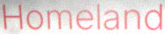
Homeland